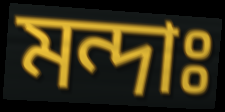
মন্দাঃ